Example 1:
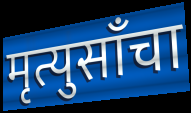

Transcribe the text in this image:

मृत्युसाँचा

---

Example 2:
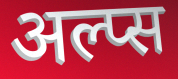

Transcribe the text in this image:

अल्प्स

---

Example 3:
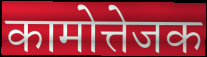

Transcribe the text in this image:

कामोत्तेजक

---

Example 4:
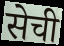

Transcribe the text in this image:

सेची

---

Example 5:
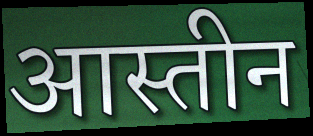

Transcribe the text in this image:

आस्तीन